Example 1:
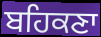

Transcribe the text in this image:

ਬਹਿਕਣਾ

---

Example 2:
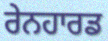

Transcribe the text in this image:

ਰੇਨਹਾਰਡ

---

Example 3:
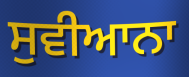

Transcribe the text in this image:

ਸੁਵੀਆਨਾ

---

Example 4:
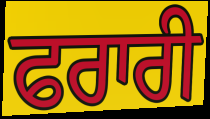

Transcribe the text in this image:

ਫਰਾਰੀ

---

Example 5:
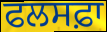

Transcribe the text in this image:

ਫਲਸਫ਼ਾ